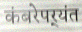
कंबरेपर्यंत